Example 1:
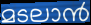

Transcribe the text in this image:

മടലാൻ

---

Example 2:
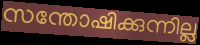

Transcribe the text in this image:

സന്തോഷിക്കുന്നില്ല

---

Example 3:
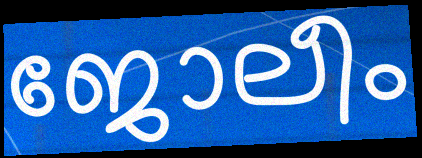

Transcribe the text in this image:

ജോലീം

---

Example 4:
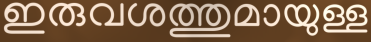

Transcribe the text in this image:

ഇരുവശത്തുമായുള്ള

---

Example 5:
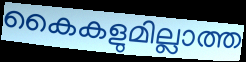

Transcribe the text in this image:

കൈകളുമില്ലാത്ത